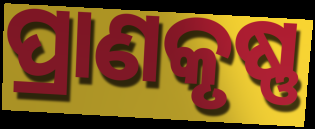
ପ୍ରାଣକୃଷ୍ଣ